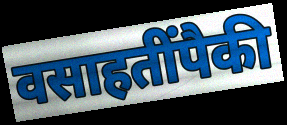
वसाहतींपैकी